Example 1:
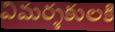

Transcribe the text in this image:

విమర్శకులకి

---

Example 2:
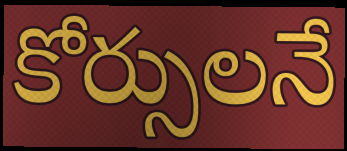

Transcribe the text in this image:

కోర్సులనే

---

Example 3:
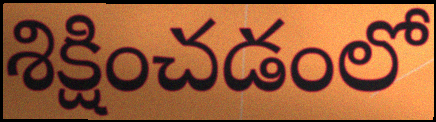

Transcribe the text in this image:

శిక్షించడంలో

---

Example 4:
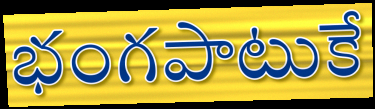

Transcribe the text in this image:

భంగపాటుకే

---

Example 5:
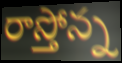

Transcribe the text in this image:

రాస్తోన్న